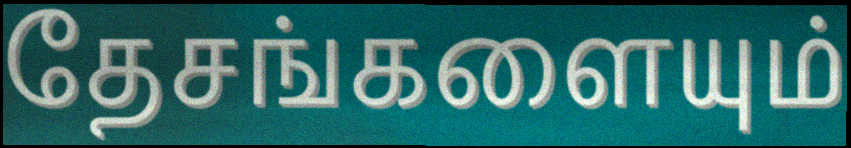
தேசங்களையும்